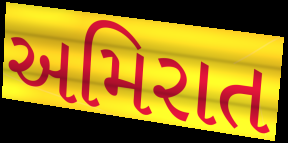
અમિરાત